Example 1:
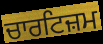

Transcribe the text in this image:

ਚਾਰਟਿਜ਼ਮ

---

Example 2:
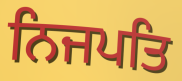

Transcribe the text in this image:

ਨਿਜਪਤਿ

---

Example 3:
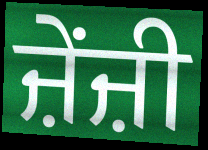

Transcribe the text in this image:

ਜ਼ੇਂਜ਼ੀ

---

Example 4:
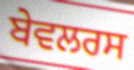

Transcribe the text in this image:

ਬੇਵਲਰਸ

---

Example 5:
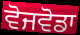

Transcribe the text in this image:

ਵੋਜਵੋਡਾ